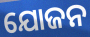
ଯୋଜନ